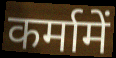
कर्मामें